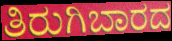
ತಿರುಗಿಬಾರದ